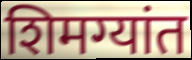
शिमग्यांत